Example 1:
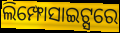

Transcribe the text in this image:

ଲିମ୍ଫୋସାଇଟ୍ସରେ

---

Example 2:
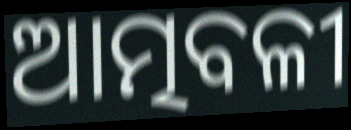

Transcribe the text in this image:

ଆତ୍ମବଳୀ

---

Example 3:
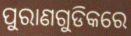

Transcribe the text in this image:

ପୁରାଣଗୁଡିକରେ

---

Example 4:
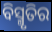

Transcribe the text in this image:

ବିସ୍ମୃତିର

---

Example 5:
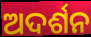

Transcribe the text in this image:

ଅଦର୍ଶନ